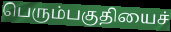
பெரும்பகுதியைச்